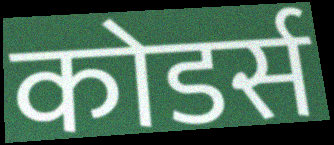
कोडर्स